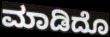
ಮಾಡಿದೊ